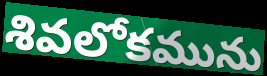
శివలోకమును